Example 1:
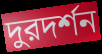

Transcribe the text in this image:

দুরদর্শন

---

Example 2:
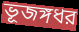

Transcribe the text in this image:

ভূজঙ্গধর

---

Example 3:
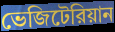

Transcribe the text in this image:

ভেজিটেরিয়ান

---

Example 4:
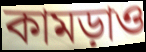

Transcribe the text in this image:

কামড়াও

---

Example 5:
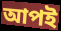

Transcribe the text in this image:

আপই